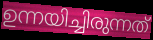
ഉന്നയിച്ചിരുന്നത്